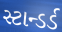
સ્ટાન્ડર્ડ